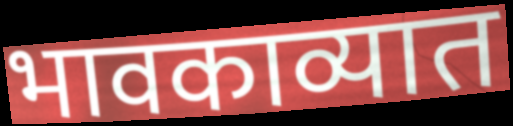
भावकाव्यात